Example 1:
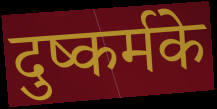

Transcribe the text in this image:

दुष्कर्मके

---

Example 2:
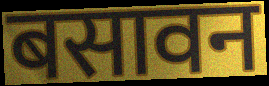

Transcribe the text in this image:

बसावन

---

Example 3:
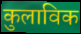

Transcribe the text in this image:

कुलाविक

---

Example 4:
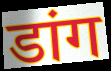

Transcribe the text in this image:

डांग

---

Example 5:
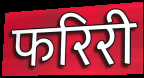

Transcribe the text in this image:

फरिरी